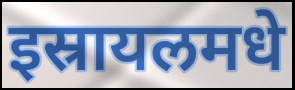
इस्रायलमधे